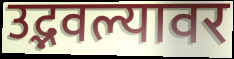
उद्भवल्यावर